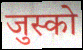
जुस्को